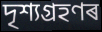
দৃশ্যগ্ৰহণৰ